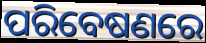
ପରିବେଷଣରେ